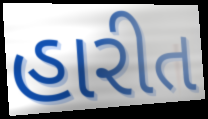
હારીત